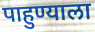
पाहुण्याला